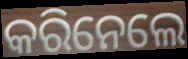
କରିନେଲେ